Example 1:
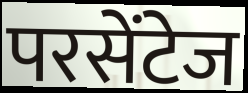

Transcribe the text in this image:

परसेंटेज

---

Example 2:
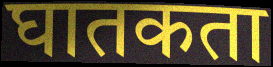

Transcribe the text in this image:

घातकता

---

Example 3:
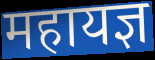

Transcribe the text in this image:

महायज्ञ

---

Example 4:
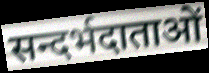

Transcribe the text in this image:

सन्दर्भदाताओं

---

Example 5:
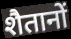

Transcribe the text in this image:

शैतानों